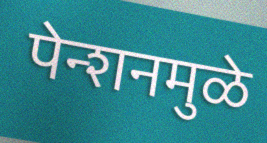
पेन्शनमुळे